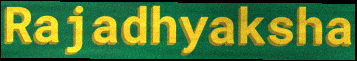
Rajadhyaksha